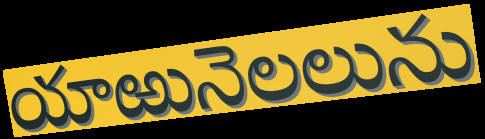
యాఱునెలలును